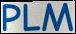
PLM